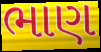
ભાણ